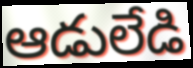
ఆడులేడి